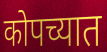
कोपच्यात